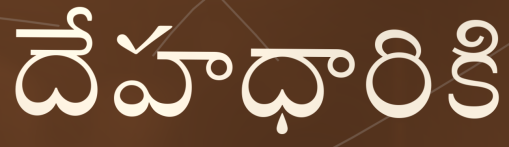
దేహధారికి